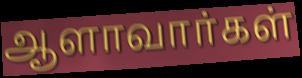
ஆளாவார்கள்